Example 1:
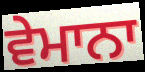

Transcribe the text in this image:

ਵੇਮਾਨਾ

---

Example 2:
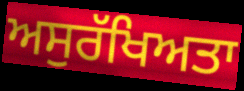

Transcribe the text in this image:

ਅਸੁਰੱਖਿਅਤਾ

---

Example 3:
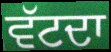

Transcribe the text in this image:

ਵੱਟਦਾ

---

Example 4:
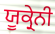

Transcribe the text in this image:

ਯੂਕ੍ਰੇਨੀ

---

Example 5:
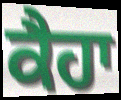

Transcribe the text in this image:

ਕੈਹਾ